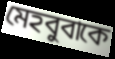
মেহবুবাকে